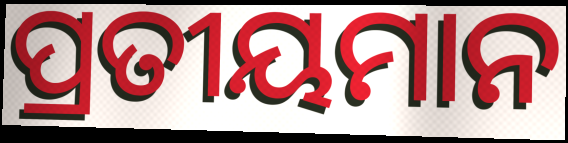
ପ୍ରତୀୟମାନ